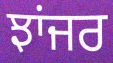
ਝਾਂਜਰ